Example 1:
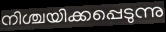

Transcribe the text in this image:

നിശ്ചയിക്കപ്പെടുന്നു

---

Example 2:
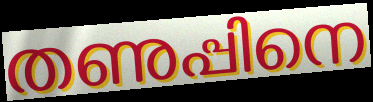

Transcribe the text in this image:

തണുപ്പിനെ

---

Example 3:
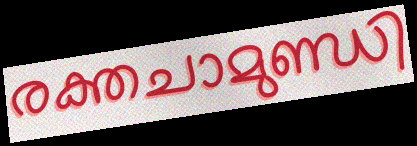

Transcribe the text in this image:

രക്തചാമുണ്ഡി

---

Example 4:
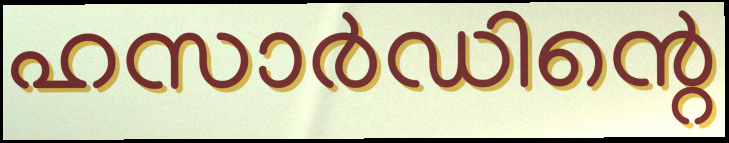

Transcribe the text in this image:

ഹസാർഡിന്റെ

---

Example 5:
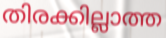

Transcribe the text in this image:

തിരക്കില്ലാത്ത